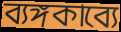
ব্যঙ্গকাব্যে